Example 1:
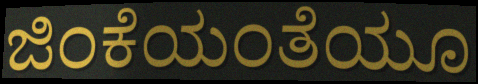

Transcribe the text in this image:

ಜಿಂಕೆಯಂತೆಯೂ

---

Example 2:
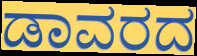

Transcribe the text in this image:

ಡಾವರದ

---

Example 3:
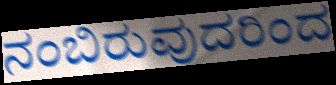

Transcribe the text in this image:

ನಂಬಿರುವುದರಿಂದ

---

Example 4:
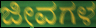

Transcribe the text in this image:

ಜೀವಗಳ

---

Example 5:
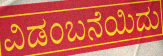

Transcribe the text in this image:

ವಿಡಂಬನೆಯಿದು